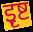
इृष्ट